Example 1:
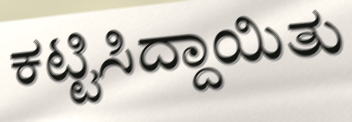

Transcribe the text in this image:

ಕಟ್ಟಿಸಿದ್ದಾಯಿತು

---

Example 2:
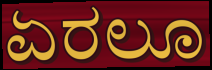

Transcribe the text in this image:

ಏರಲೂ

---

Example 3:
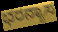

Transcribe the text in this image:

ಭರನ್ಯಾಸ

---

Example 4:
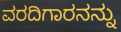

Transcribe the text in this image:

ವರದಿಗಾರನನ್ನು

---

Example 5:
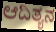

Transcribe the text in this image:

ಆದಿತ್ಯನ